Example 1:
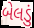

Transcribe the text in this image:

બેલડું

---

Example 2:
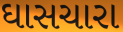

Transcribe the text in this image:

ઘાસચારા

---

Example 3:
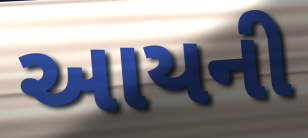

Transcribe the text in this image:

આયની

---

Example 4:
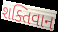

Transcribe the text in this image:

શક્તિવાન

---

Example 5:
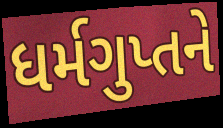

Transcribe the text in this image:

ધર્મગુપ્તને